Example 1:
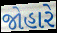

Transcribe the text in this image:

જોહારે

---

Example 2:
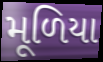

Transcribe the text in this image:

મૂળિયા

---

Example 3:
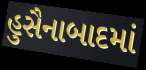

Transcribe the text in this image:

હુસૈનાબાદમાં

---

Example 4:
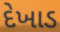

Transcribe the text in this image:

દેખાડ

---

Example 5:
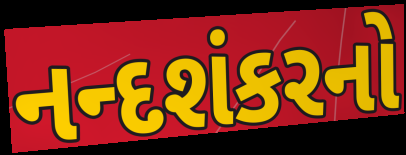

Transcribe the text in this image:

નન્દશંકરનો